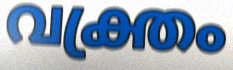
വക്ത്രം